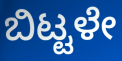
ಬಿಟ್ಟಳೇ